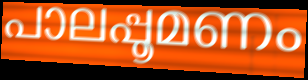
പാലപ്പൂമണം